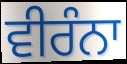
ਵੀਰੰਨਾ